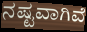
ನಷ್ಟವಾಗಿವೆ